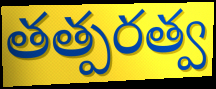
తత్పరత్వ